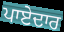
ਪਾਏਦਾਰ